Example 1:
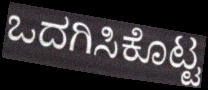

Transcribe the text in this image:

ಒದಗಿಸಿಕೊಟ್ಟ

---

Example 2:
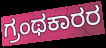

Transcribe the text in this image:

ಗ್ರಂಥಕಾರರ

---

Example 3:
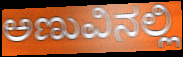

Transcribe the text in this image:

ಅಣುವಿನಲ್ಲಿ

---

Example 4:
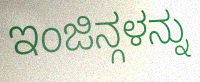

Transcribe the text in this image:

ಇಂಜಿನ್ಗಳನ್ನು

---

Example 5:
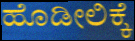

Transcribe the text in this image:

ಹೊಡೀಲಿಕ್ಕೆ